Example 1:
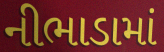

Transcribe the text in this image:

નીભાડામાં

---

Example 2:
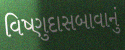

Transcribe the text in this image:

વિષ્ણુદાસબાવાનું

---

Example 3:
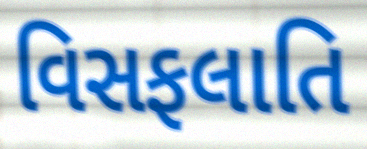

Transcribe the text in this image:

વિસફલાતિ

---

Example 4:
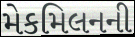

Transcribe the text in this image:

મેકમિલનની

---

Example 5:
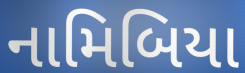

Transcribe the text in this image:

નામિબિયા